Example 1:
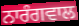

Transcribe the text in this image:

ਨਾਰੰਗਵਾਲ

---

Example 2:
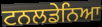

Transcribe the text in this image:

ਟਨਲਡੇਨਿਆ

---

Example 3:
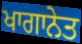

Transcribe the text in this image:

ਖਾਗਾਨੇਤ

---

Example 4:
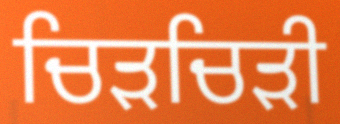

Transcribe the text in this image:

ਚਿੜਚਿੜੀ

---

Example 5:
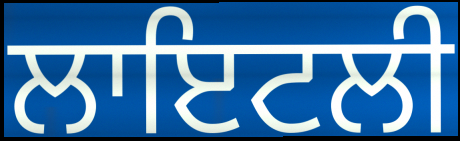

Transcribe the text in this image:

ਲਾਇਟਲੀ